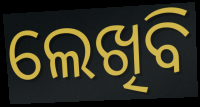
ଲେଖିବି